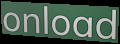
onload